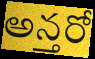
అన్తరో